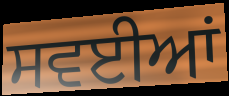
ਸਵਈਆਂ